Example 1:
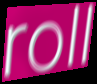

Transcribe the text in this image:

roll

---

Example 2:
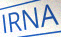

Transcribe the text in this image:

IRNA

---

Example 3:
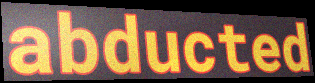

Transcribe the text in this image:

abducted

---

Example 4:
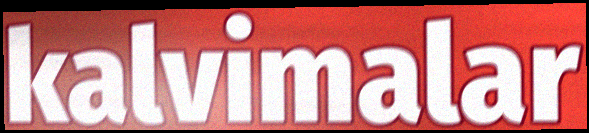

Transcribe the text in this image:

kalvimalar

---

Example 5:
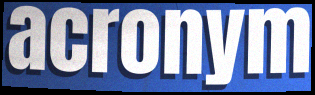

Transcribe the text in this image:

acronym